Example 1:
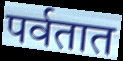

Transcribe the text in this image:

पर्वतात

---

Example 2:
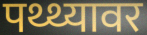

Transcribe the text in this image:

पथ्थ्यावर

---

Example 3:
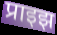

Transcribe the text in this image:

प्राइझ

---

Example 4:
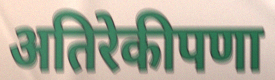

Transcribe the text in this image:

अतिरेकीपणा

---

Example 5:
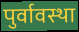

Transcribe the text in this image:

पुर्वावस्था